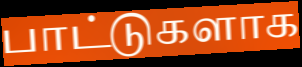
பாட்டுகளாக